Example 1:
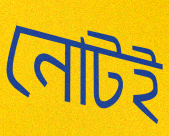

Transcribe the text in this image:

নোটই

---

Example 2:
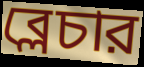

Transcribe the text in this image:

ব্লেচার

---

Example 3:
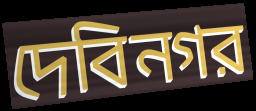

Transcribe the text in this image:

দেবিনগর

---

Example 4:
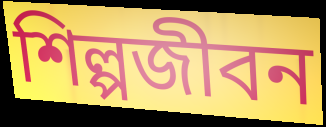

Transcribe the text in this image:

শিল্পজীবন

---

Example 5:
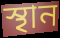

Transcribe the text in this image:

স্থান